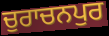
ਚੁਰਾਚਨਪੁਰ